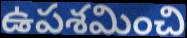
ఉపశమించి